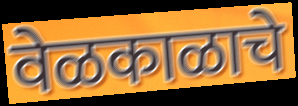
वेळकाळाचे